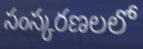
సంస్కరణలలో